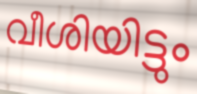
വീശിയിട്ടും